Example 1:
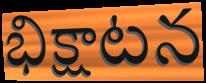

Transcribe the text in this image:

భిక్షాటన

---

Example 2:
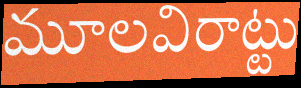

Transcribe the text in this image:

మూలవిరాట్టు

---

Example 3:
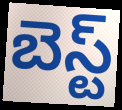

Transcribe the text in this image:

బెస్ట్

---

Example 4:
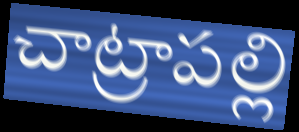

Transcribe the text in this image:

చాట్రాపల్లి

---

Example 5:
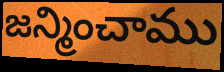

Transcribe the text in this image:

జన్మించాము